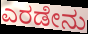
ಎರಡೇನು